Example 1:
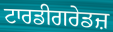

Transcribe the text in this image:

ਟਾਰਡੀਗਰੇਡਜ਼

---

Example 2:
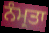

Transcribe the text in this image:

ਨੰਮ੍ਰਤਾ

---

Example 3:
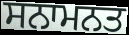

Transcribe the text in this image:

ਸਨਾਮਨਤ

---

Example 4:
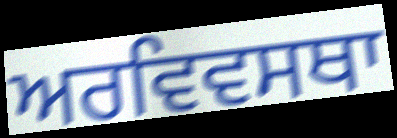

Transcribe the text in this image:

ਅਰਵਿਵਸਥਾ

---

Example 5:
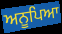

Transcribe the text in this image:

ਅਨੂਪਿਆ